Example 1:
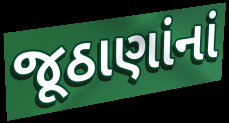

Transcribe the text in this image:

જૂઠાણાંનાં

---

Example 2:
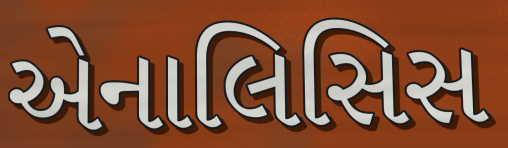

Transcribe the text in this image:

એનાલિસિસ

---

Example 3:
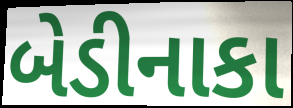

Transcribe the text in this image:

બેડીનાકા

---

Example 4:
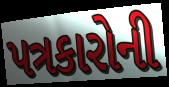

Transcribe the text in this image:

પત્રકારોની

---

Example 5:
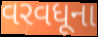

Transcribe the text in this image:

વરવધૂના